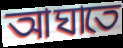
আঘাতে